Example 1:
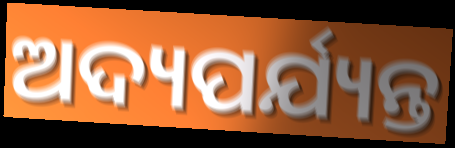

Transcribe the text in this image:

ଅଦ୍ୟପର୍ଯ୍ୟନ୍ତ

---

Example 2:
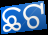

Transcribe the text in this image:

ଛଟ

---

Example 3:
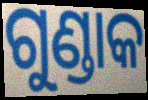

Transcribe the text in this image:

ଗୁଣ୍ଡାକ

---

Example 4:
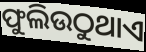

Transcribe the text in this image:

ଫୁଲିଉଠୁଥାଏ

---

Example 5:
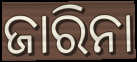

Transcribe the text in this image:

ଜାରିନା